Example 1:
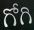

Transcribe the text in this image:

గోగి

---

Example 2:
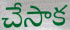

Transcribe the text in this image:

చేసాక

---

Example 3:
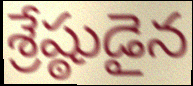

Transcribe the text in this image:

శ్రేష్ఠుడైన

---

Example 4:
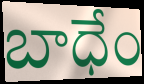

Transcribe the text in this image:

బాధేం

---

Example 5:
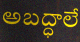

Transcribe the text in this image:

అబద్ధాలే